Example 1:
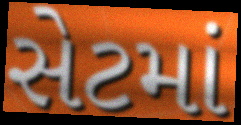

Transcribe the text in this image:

સેટમાં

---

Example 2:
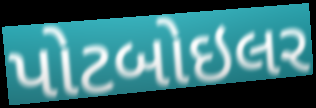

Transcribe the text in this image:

પોટબોઇલર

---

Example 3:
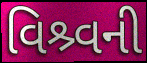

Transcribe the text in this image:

વિશ્ર્વની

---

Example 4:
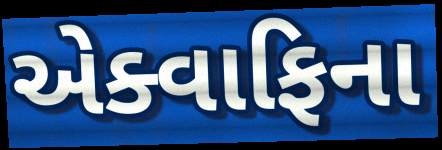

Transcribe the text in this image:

એક્વાફિના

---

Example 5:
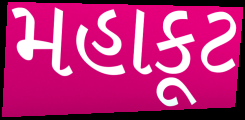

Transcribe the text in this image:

મહાકૂટ